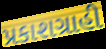
પ્રકાશગ્રાહી